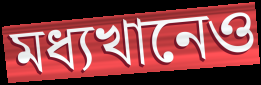
মধ্যখানেও